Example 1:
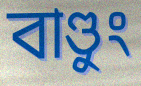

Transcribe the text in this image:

বাণ্ডুং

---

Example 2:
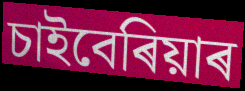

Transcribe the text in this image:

চাইবেৰিয়াৰ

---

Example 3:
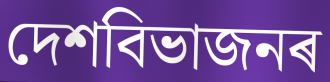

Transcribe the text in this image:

দেশবিভাজনৰ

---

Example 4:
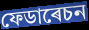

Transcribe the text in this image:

ফেডাৰেচন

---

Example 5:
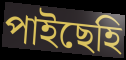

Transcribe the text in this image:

পাইছেহি